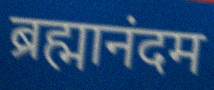
ब्रह्मानंदम